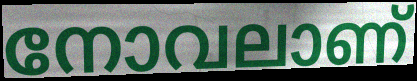
നോവലാണ്